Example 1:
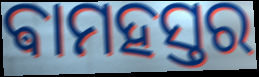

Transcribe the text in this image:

ଵାମହସ୍ତର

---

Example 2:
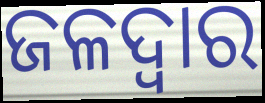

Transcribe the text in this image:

ଜଳଦ୍ୱାର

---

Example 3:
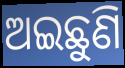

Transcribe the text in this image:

ଅଇଛୁଣି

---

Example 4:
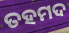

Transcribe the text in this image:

ତହମଦ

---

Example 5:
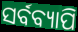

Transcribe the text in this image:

ସର୍ବବ୍ୟାପି